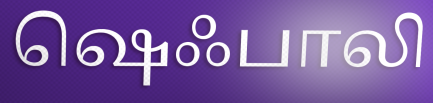
ஷெஃபாலி